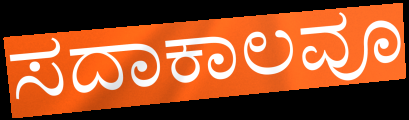
ಸದಾಕಾಲವೂ